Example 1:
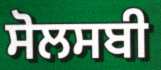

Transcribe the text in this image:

ਸੋਲਸਬੀ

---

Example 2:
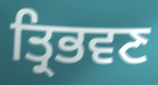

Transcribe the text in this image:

ਤ੍ਰਿਭਵਣ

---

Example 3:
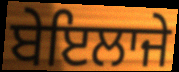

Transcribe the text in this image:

ਬੇਇਲਾਜੇ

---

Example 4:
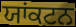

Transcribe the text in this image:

ਯਾਂਕਟਨ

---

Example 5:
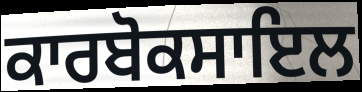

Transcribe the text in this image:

ਕਾਰਬੋਕਸਾਇਲ